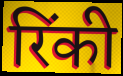
रिंकी